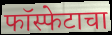
फॉस्फेटाचा